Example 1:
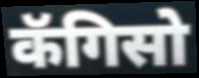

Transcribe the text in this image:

कॅगिसो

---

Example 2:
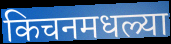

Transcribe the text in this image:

किचनमधल्या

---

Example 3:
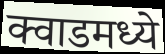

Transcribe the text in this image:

क्वाडमध्ये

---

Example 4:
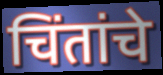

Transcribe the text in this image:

चिंतांचे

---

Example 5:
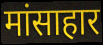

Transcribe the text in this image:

मांसाहार